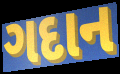
ગદાન